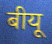
बीयू